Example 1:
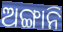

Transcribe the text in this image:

ଅଙ୍ଗାନି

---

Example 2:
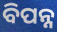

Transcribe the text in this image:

ବିପନ୍ନ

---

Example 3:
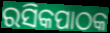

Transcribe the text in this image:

ରସିକପାଠକ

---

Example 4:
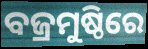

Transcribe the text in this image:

ବଜ୍ରମୁଷ୍ଠିରେ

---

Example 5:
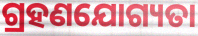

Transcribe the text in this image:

ଗ୍ରହଣଯୋଗ୍ୟତା